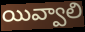
యివ్వాలి